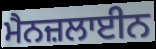
ਮੈਨਜ਼ਲਾਈਨ